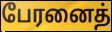
பேரனைத்